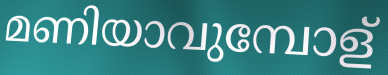
മണിയാവുമ്പോള്